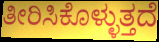
ತೀರಿಸಿಕೊಳ್ಳುತ್ತದೆ